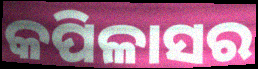
କପିଳାସର